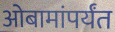
ओबामांपर्यंत